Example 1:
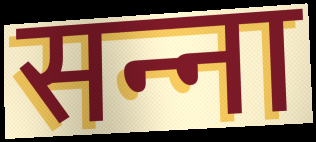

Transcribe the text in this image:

सन्ना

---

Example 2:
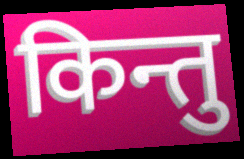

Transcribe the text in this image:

किन्‍तु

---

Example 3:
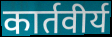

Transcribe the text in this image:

कार्तवीर्य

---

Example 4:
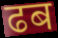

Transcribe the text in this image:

ढब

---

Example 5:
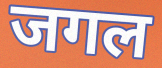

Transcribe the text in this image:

जगल